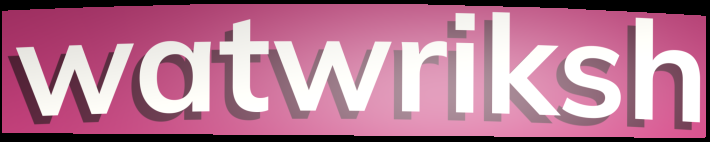
watwriksh